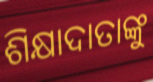
ଶିକ୍ଷାଦାତାଙ୍କୁ